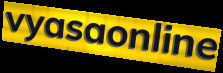
vyasaonline